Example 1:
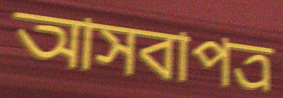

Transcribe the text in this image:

আসবাপত্র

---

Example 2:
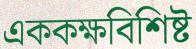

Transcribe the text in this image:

এককক্ষবিশিষ্ট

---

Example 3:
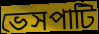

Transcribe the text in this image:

ভেসপাটি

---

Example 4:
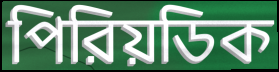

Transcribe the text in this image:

পিরিয়ডিক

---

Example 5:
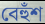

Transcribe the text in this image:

বেহুঁশ